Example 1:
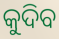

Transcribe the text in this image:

କୁଦିବ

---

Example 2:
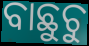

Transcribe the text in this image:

ବାଛୁଚୁ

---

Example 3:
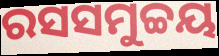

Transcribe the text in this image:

ରସସମୁଚ୍ଚୟ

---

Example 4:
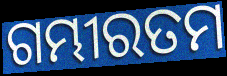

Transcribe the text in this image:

ଗମ୍ଭୀରତମ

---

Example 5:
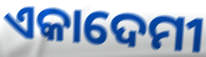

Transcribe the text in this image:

ଏକାଦେମୀ